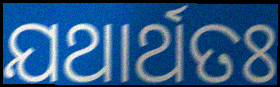
ଯଥାର୍ଥତଃ